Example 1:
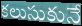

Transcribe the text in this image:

కలుసుకునే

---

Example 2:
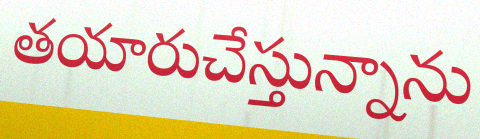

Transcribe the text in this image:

తయారుచేస్తున్నాను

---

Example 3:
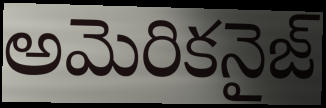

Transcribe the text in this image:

అమెరికనైజ్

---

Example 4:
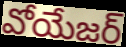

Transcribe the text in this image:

వోయేజర్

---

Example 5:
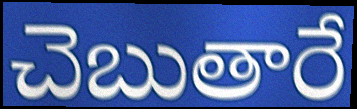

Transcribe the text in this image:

చెబుతారే